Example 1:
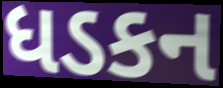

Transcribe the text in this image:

ધડકન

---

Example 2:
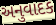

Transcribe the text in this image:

અનુવાદક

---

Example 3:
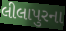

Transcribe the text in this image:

લીલાપુરના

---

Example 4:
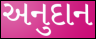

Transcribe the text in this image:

અનુદાન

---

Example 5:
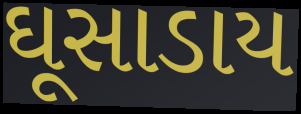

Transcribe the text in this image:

ઘૂસાડાય